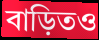
বাড়িতও